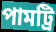
পামট্রি